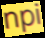
npi